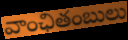
వాంఛితంబులు